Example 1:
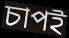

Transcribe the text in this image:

চাপই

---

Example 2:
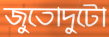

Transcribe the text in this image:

জুতোদুটো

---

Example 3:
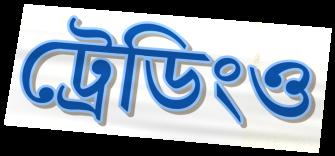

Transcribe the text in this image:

ট্রেডিংও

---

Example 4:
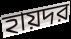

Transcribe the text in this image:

হায়দর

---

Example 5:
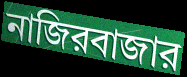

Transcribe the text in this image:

নাজিরবাজার